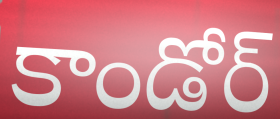
కాండోర్